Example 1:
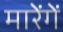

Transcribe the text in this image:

मारेंगें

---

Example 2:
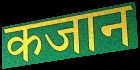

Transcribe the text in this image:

कजान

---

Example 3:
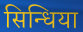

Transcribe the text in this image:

सिन्धिया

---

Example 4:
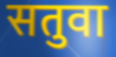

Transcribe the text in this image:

सतुवा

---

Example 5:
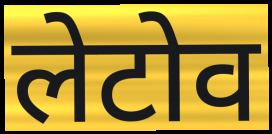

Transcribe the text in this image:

लेटोव